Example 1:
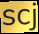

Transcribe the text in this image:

scj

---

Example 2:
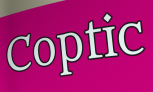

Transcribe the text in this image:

Coptic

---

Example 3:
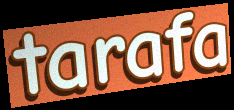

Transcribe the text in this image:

tarafa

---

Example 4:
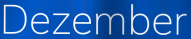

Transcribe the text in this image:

Dezember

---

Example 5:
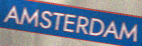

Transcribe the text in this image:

AMSTERDAM